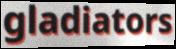
gladiators